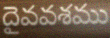
దైవవశము